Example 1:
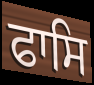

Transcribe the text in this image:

ਫਾਸਿ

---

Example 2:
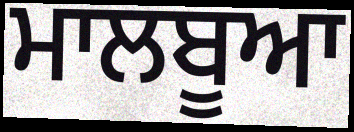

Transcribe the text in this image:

ਮਾਲਬੂਆ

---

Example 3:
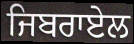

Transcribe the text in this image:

ਜਿਬਰਾਏਲ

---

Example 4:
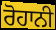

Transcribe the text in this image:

ਰੋਹਾਨੀ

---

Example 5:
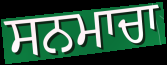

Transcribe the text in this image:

ਸਨਮਾਚਾ